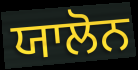
ਯਾਲੋਨ